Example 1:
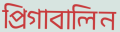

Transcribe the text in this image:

প্রিগাবালিন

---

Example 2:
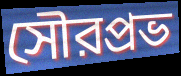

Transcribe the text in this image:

সৌরপ্রভ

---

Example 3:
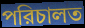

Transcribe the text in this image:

পরিচালত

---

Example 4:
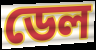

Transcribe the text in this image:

ডেল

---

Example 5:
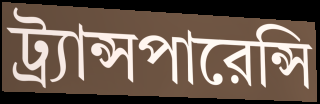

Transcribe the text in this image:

ট্র্যান্সপারেন্সি